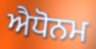
ਐਧੋਨਮ